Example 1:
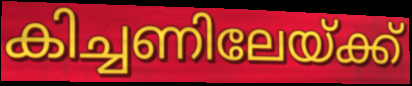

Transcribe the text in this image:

കിച്ചണിലേയ്ക്ക്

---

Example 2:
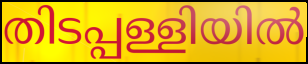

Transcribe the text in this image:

തിടപ്പള്ളിയിൽ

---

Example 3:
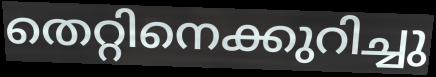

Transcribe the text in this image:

തെറ്റിനെക്കുറിച്ചു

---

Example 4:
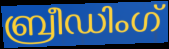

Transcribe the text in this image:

ബ്രീഡിംഗ്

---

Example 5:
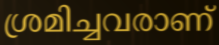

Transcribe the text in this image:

ശ്രമിച്ചവരാണ്